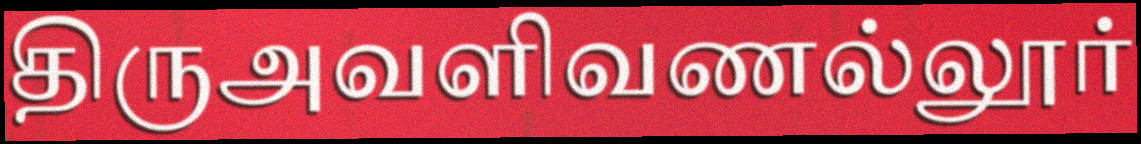
திருஅவளிவணல்லூர்